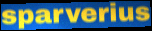
sparverius